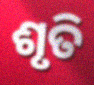
ଶୃତି